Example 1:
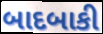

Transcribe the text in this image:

બાદબાકી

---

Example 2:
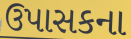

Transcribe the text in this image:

ઉપાસકના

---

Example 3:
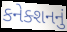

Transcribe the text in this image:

કનેક્શનનું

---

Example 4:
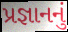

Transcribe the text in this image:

પ્રજ્ઞાનનું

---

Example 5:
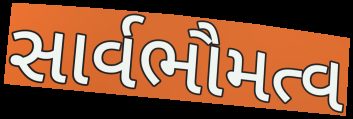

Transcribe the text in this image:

સાર્વભૌમત્વ